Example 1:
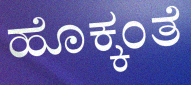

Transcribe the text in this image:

ಹೊಕ್ಕಂತೆ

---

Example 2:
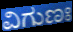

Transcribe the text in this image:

ವಿಗುಣಃ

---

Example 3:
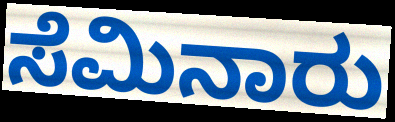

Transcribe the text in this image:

ಸೆಮಿನಾರು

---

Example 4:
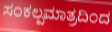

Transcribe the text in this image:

ಸಂಕಲ್ಪಮಾತ್ರದಿಂದ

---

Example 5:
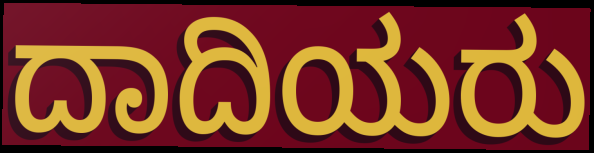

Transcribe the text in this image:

ದಾದಿಯರು